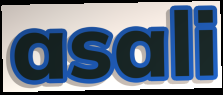
asali